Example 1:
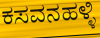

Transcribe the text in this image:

ಕಸವನಹಳ್ಳಿ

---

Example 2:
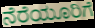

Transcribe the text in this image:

ನೆರೆಯೂರಿಗೆ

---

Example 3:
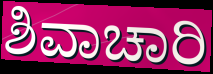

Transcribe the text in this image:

ಶಿವಾಚಾರಿ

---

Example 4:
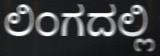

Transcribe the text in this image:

ಲಿಂಗದಲ್ಲಿ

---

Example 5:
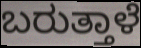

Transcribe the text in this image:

ಬರುತ್ತಾಳೆ